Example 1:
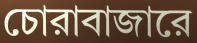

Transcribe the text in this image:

চোরাবাজারে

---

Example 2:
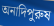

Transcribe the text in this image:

অনাদিপুরুষ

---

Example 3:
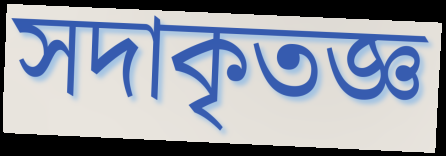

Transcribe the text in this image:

সদাকৃতজ্ঞ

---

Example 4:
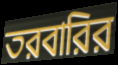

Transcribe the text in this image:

তরবারির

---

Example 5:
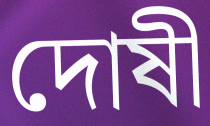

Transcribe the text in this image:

দোষী